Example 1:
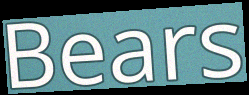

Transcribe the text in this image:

Bears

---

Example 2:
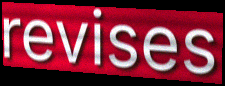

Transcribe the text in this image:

revises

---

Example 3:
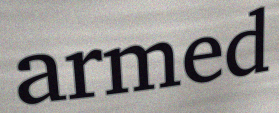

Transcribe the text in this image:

armed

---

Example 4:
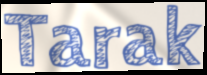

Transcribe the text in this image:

Tarak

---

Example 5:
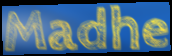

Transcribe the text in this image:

Madhe